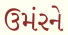
ઉમંરને